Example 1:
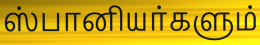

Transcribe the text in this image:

ஸ்பானியர்களும்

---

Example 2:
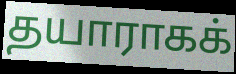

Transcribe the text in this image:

தயாராகக்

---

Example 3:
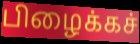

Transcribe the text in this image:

பிழைக்கச்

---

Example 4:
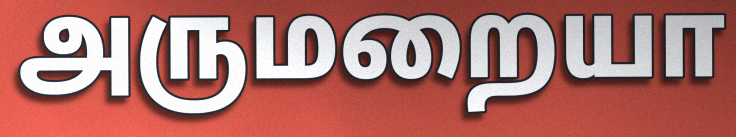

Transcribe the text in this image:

அருமறையா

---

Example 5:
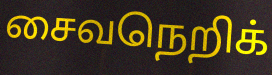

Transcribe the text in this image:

சைவநெறிக்